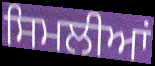
ਸਿਮਲੀਆਂ